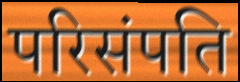
परिसंपति